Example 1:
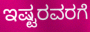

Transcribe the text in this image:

ಇಷ್ಟರವರಗೆ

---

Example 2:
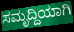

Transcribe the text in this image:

ಸಮೃದ್ದಿಯಾಗಿ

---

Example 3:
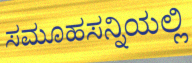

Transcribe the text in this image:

ಸಮೂಹಸನ್ನಿಯಲ್ಲಿ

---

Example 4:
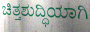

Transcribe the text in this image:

ಚಿತ್ತಶುದ್ಧಿಯಾಗಿ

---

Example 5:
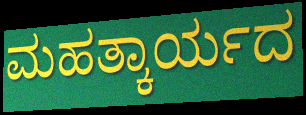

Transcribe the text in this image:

ಮಹತ್ಕಾರ್ಯದ